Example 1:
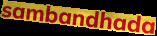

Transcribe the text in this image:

sambandhada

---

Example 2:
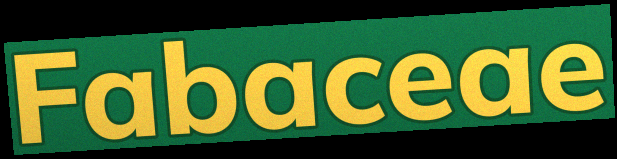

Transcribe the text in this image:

Fabaceae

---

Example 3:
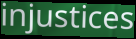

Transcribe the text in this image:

injustices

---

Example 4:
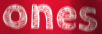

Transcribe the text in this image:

ones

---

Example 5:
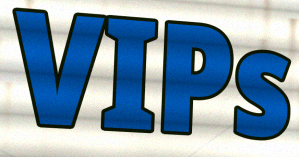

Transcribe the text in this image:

VIPs